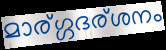
മാര്ഗ്ഗദര്ശനം